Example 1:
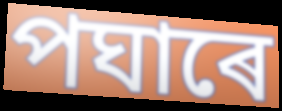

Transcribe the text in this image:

পঘাৰে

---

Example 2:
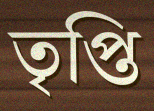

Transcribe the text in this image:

তৃপ্তি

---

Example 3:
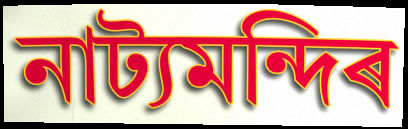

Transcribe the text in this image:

নাট্যমন্দিৰ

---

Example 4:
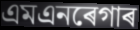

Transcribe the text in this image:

এমএনৰেগাৰ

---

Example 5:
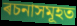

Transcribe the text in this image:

ৰচনাসমূহত